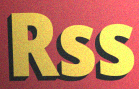
Rss